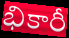
భికారీ